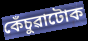
কেঁচুৱাটোক